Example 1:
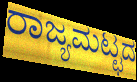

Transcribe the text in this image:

ರಾಜ್ಯಮಟ್ಟದ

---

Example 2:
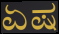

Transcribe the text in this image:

ಏಷ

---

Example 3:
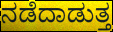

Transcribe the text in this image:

ನಡೆದಾಡುತ್ತ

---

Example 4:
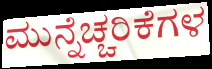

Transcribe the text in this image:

ಮುನ್ನೆಚ್ಚರಿಕೆಗಳ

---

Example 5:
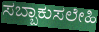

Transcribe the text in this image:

ಸಬ್ಬಾಕುಸಲೇಹಿ